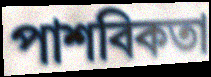
পাশবিকতা